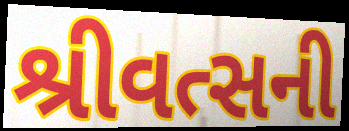
શ્રીવત્સની